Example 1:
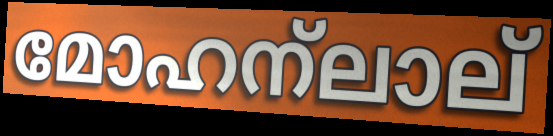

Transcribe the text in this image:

മോഹന്ലാല്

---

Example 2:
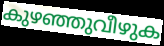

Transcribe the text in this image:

കുഴഞ്ഞുവീഴുക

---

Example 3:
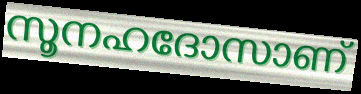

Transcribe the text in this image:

സൂനഹദോസാണ്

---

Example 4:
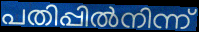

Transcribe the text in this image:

പതിപ്പിൽനിന്ന്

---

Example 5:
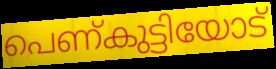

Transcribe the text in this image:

പെണ്കുട്ടിയോട്